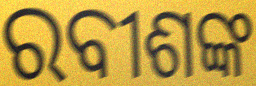
ରବୀଶଙ୍କ